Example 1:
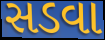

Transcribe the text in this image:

સડવા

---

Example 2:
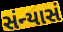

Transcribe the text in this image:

સંન્યાસં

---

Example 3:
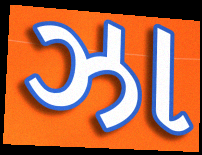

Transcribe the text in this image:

ઝા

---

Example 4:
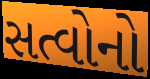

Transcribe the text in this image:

સત્વોનો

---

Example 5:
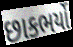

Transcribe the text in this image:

છાકભર્યો